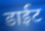
डाईट